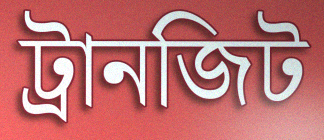
ট্রানজিট